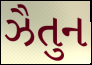
ઝૈતુન